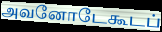
அவனோடேகூடப்